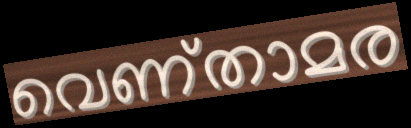
വെണ്താമര